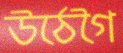
উঠেগৈ